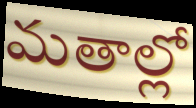
మతాల్లో